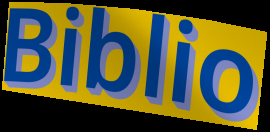
Biblio